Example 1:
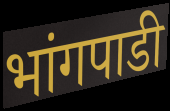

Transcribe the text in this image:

भांगपाडी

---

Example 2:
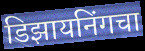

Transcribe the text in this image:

डिझायनिंगचा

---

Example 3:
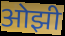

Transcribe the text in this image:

ओझी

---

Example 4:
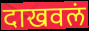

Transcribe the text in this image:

दाखवलं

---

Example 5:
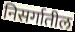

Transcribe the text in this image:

निसर्गातील